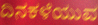
ದಿನಕಳೆಯುವ